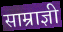
साम्राज्ञी